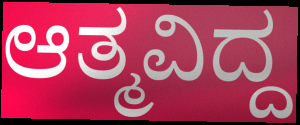
ಆತ್ಮವಿದ್ದ